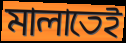
মালাতেই